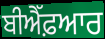
ਬੀਐੱਫ਼ਆਰ